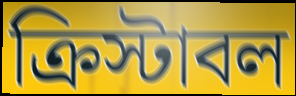
ক্রিস্টাবল